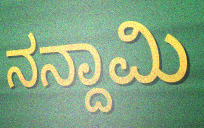
ನನ್ದಾಮಿ